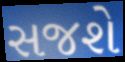
સજશે